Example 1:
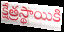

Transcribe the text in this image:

క్షేత్రస్థాయికి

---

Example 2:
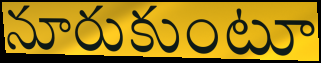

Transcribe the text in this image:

నూరుకుంటూ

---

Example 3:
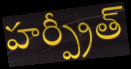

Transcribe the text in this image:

హర్ప్రీత్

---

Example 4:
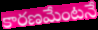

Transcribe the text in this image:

కారణమేంటనే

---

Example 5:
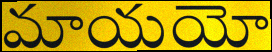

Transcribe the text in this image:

మాయయో